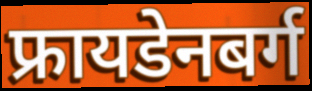
फ्रायडेनबर्ग